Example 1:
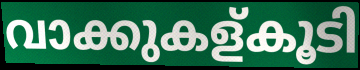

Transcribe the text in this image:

വാക്കുകള്കൂടി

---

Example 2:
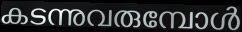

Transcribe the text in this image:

കടന്നുവരുമ്പോൾ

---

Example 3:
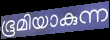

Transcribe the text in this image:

ഭൂമിയാകുന്ന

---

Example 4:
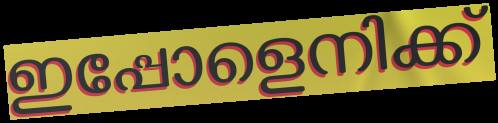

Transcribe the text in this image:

ഇപ്പോളെനിക്ക്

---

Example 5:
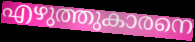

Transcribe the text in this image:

എഴുത്തുകാരനെ